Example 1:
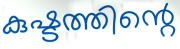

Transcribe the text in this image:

കുഷ്ടത്തിന്റെ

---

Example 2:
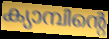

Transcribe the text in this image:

ക്യാമ്പിന്റെ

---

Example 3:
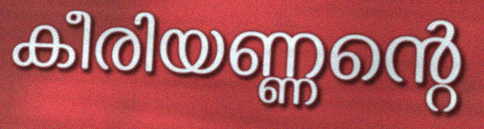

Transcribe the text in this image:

കീരിയണ്ണന്റെ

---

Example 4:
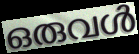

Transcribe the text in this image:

ഒരുവൾ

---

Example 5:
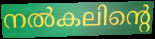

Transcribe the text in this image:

നൽകലിന്റെ